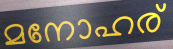
മനോഹര്